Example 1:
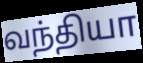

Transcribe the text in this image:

வந்தியா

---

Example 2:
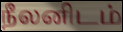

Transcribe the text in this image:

நீலனிடம்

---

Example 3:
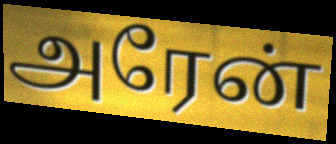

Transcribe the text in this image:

அரேன்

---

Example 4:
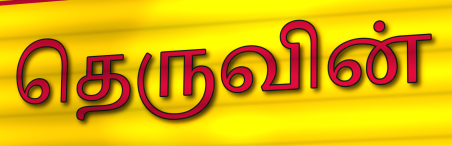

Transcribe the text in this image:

தெருவின்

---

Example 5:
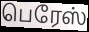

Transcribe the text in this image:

பெரேஸ்